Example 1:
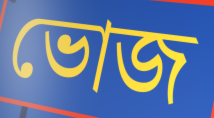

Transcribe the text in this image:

ভোজ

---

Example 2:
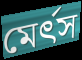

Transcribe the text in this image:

মের্ৎস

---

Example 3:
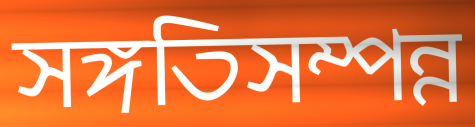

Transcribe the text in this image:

সঙ্গতিসম্পন্ন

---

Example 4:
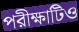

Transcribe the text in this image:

পরীক্ষাটিও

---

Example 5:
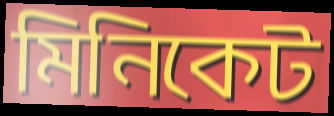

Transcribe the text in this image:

মিনিকেট